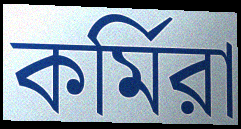
কর্মিরা